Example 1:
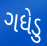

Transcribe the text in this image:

ગધેડુ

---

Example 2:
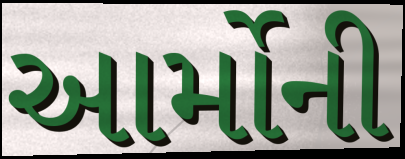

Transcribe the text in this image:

આર્મોની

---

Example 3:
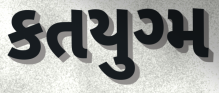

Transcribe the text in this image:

કતયુગ્મ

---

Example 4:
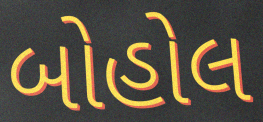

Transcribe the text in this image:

બોહોલ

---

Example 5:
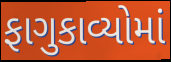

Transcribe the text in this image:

ફાગુકાવ્યોમાં